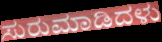
ಸುರುಮಾಡಿದಳು